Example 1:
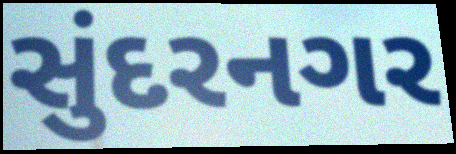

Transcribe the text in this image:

સુંદરનગર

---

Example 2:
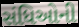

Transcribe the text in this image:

સંધિઓની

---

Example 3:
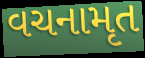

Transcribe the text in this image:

વચનામૃત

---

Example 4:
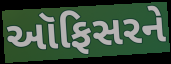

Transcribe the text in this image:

ઑફિસરને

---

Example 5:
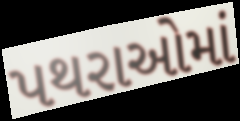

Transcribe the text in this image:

પથરાઓમાં